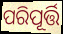
ପରିପୂର୍ତ୍ତି